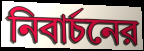
নিবার্চনের